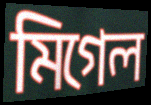
মিগেল